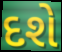
દશે